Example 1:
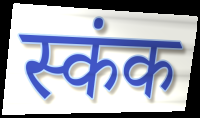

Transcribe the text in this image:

स्कंक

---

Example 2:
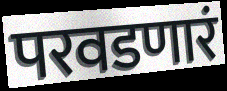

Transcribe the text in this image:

परवडणारं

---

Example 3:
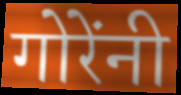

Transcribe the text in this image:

गोरेंनी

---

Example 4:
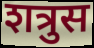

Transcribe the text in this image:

शत्रुस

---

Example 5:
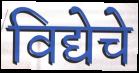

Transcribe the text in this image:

विद्येचे